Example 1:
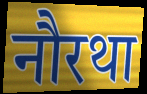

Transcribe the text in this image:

नौरथा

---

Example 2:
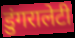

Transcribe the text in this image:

डुंगरालेटी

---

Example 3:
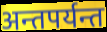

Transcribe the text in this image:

अन्तपर्यन्त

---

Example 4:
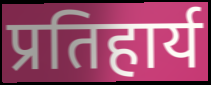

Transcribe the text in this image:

प्रतिहार्य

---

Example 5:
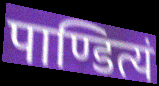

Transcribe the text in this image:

पाण्डित्यं